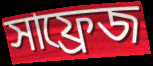
সাফ্রেজ